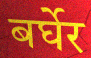
बर्घेर